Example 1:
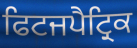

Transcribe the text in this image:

ਫਿਟਜਪੈਟ੍ਰਿਕ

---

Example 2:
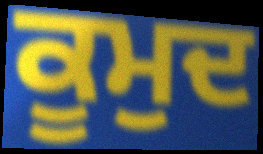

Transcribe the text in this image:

ਕੂਮੁਦ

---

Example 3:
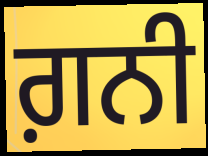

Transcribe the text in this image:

ਗ਼ਨੀ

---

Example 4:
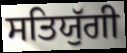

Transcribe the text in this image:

ਸਤਿਯੁੱਗੀ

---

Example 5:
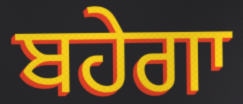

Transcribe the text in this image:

ਬਹੇਗਾ